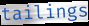
tailings